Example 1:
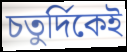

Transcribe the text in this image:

চতুর্দিকেই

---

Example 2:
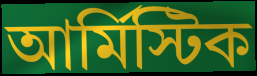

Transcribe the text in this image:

আর্মিস্টিক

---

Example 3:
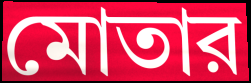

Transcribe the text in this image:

মোতার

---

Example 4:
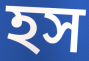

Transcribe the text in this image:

হস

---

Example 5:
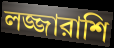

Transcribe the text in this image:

লজ্জারাশি